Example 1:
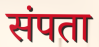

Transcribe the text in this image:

संपता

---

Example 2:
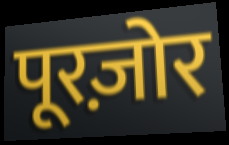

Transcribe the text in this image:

पूरज़ोर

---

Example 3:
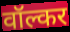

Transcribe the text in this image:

वॉल्कर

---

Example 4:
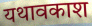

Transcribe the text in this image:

यथावकाश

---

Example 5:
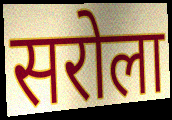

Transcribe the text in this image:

सरोला